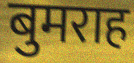
बुमराह